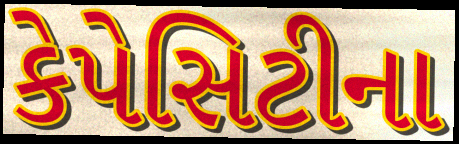
કેપેસિટીના